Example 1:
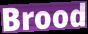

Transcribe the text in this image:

Brood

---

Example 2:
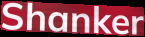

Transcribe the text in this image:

Shanker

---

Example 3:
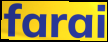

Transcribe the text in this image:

farai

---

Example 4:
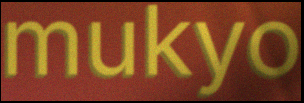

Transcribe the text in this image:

mukyo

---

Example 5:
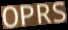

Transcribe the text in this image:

OPRS